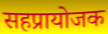
सहप्रायोजक